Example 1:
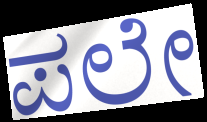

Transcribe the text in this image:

ಪಲೇ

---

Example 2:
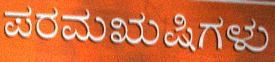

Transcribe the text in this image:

ಪರಮಋಷಿಗಳು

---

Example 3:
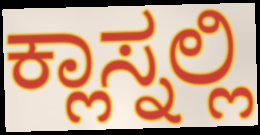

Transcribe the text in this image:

ಕ್ಲಾಸ್ನಲ್ಲಿ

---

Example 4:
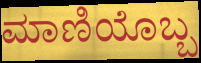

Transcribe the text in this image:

ಮಾಣಿಯೊಬ್ಬ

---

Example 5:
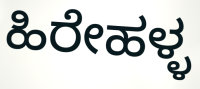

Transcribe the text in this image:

ಹಿರೇಹಳ್ಳ